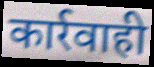
कार्रवाही